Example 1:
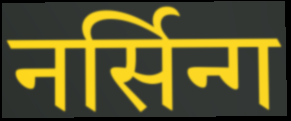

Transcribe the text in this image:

नर्सिन्ग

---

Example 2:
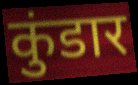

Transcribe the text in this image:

कुंडार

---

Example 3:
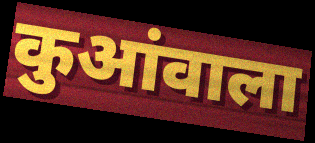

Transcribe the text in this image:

कुआंवाला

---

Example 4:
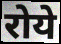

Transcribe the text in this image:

रोये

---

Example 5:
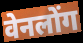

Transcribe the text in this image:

वेनलोंग